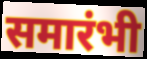
समारंभी